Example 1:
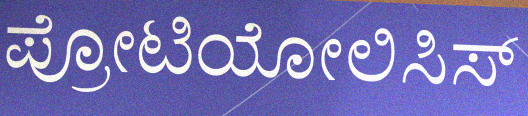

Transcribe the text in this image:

ಪ್ರೋಟಿಯೋಲಿಸಿಸ್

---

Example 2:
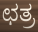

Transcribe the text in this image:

ಛತ್ರ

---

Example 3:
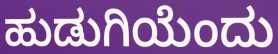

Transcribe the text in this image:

ಹುಡುಗಿಯೆಂದು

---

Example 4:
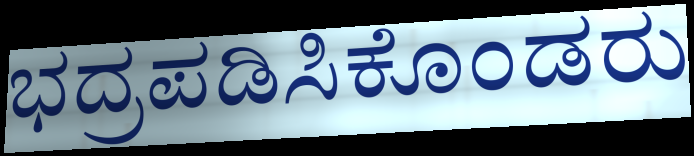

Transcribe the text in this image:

ಭದ್ರಪಡಿಸಿಕೊಂಡರು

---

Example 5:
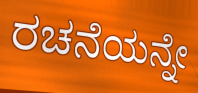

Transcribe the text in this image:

ರಚನೆಯನ್ನೇ